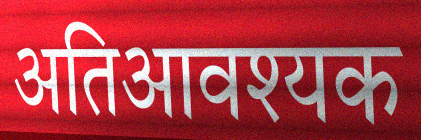
अतिआवश्यक